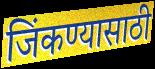
जिंकण्यासाठी